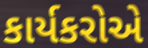
કાર્યકરોએ